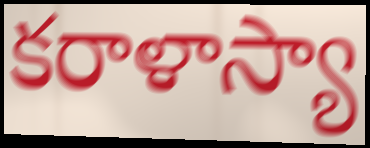
కరాళాస్యా